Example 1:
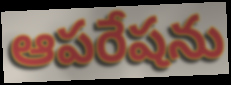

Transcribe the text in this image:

ఆపరేషను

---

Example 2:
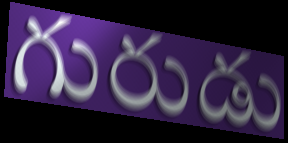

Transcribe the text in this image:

గురుడు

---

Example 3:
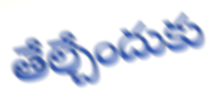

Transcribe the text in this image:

తేల్చేందుకు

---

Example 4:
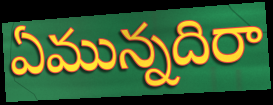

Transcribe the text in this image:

ఏమున్నదిరా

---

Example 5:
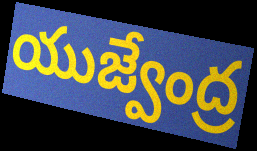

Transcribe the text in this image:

యుజ్వేంద్ర